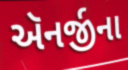
ઍનર્જીના